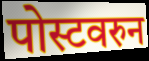
पोस्टवरुन